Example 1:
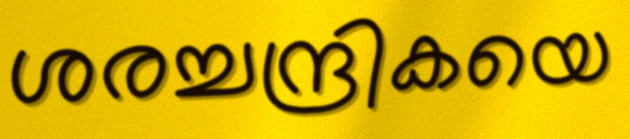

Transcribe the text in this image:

ശരച്ചന്ദ്രികയെ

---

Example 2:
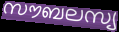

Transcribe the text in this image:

സൗബലസ്യ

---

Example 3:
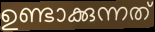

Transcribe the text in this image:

ഉണ്ടാക്കുന്നത്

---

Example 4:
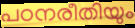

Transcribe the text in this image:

പഠനരീതിയും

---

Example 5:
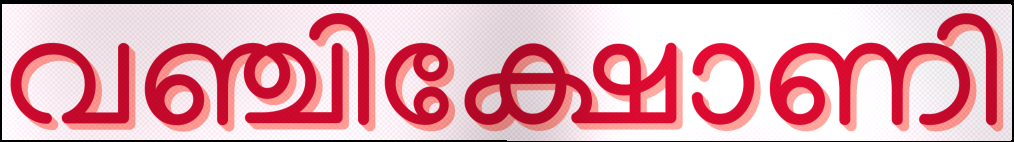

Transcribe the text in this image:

വഞ്ചിക്ഷോണി